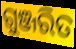
ଗୁଞ୍ଜରିତ